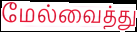
மேல்வைத்து